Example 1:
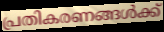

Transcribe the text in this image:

പ്രതികരണങ്ങൾക്ക്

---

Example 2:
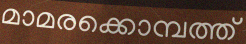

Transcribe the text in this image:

മാമരക്കൊമ്പത്ത്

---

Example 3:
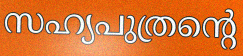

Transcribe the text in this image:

സഹ്യപുത്രന്റെ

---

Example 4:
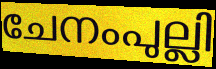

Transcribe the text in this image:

ചേനംപുല്ലി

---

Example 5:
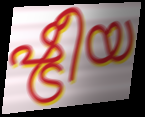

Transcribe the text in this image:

ഷ്ട്രീയ